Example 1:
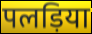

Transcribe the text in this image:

पलड़िया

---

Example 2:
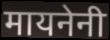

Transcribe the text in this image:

मायनेनी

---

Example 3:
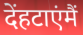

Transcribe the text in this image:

देंहटाएंमैं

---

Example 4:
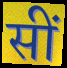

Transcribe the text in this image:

सीं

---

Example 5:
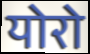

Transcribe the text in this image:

योरो